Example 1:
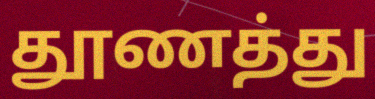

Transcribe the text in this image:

தூணத்து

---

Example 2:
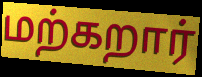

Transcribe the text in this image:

மற்கறார்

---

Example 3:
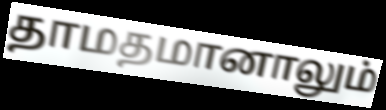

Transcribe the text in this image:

தாமதமானாலும்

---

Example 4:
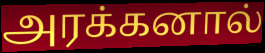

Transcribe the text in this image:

அரக்கனால்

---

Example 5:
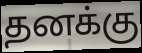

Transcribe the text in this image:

தனக்கு